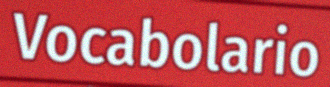
Vocabolario